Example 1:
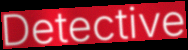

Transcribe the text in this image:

Detective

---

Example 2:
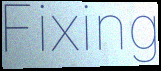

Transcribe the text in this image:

Fixing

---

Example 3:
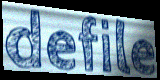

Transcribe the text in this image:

defile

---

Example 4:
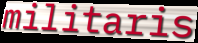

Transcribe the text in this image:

militaris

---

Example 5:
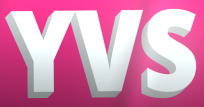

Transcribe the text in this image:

YVS